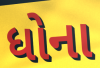
ધોના